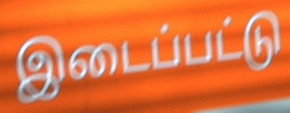
இடைப்பட்டு